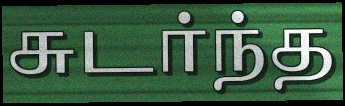
சுடர்ந்த